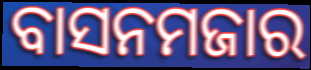
ବାସନମଜାର